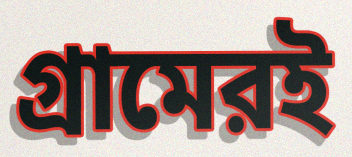
গ্রামেরই